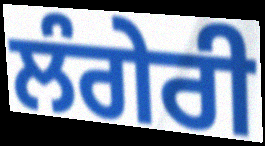
ਲੰਗੇਰੀ